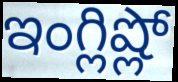
ఇంగ్లిష్లో